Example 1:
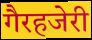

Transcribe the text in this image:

गैरहजेरी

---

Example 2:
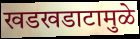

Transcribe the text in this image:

खडखडाटामुळे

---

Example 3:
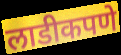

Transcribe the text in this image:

लाडीकपणे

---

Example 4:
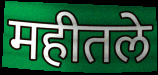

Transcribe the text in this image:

महीतले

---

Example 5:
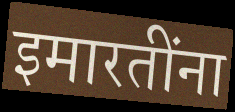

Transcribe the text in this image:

इमारतींना